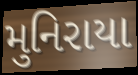
મુનિરાયા